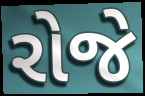
રોજે